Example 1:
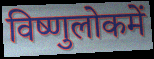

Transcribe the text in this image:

विष्णुलोकमें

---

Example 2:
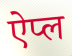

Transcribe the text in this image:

ऐप्ल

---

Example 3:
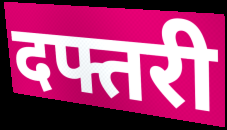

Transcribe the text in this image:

दफ्तरी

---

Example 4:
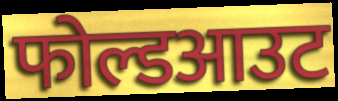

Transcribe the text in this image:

फोल्डआउट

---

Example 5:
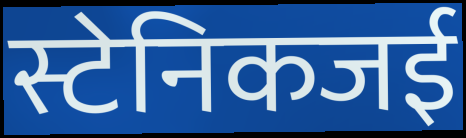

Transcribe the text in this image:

स्टेनिकजई